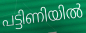
പട്ടിണിയിൽ